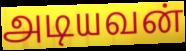
அடியவன்